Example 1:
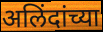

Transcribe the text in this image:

अलिंदांच्या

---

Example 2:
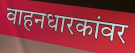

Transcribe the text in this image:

वाहनधारकांवर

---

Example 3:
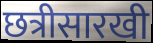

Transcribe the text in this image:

छत्रीसारखी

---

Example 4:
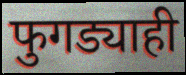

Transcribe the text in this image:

फुगड्याही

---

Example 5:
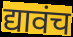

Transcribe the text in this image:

द्यावंच